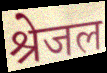
श्रेजल